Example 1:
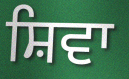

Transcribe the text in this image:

ਸ਼ਿਵਾ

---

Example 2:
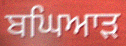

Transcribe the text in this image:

ਬਘਿਆੜ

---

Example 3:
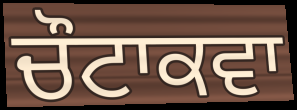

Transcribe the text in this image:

ਚੌਟਾਕਵਾ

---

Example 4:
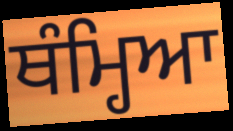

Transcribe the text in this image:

ਥੰਮ੍ਹਿਆ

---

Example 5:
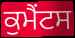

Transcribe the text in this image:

ਕੁਮੈਂਟਸ